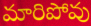
మారిపోవు